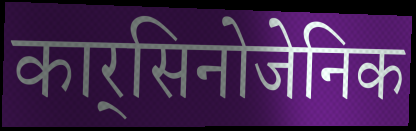
कार्सिनोजेनिक